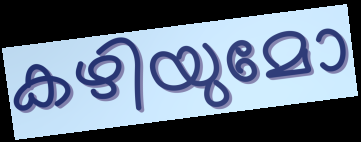
കഴിയുമോ